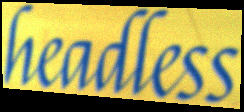
headless